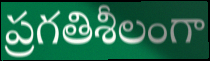
ప్రగతిశీలంగా